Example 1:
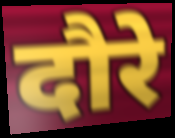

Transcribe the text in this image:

दौरे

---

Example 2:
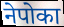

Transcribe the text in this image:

नेपोका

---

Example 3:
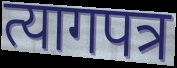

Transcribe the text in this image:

त्यागपत्र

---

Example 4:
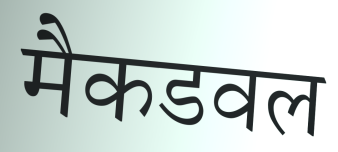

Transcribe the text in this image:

मैकडवल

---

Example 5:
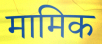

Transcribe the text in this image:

मामिक